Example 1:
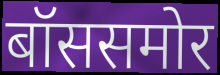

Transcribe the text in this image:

बॉससमोर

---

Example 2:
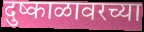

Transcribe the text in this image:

दुष्काळावरच्या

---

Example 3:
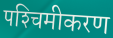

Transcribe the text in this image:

पश्चिमीकरण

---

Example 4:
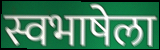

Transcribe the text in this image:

स्वभाषेला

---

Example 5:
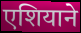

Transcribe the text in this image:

एशियाने